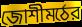
জোশীমঠের